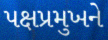
પક્ષપ્રમુખને